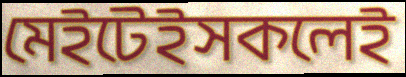
মেইটেইসকলেই